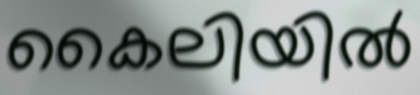
കൈലിയിൽ